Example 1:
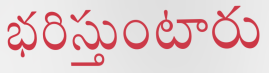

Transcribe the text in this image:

భరిస్తుంటారు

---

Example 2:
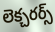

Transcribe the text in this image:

లెక్చరర్స్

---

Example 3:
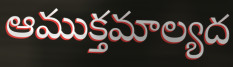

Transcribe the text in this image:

ఆముక్తమాల్యద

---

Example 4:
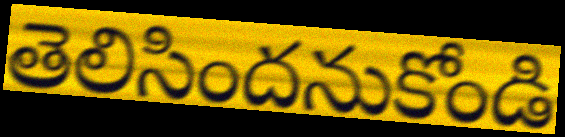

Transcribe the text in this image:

తెలిసిందనుకోండి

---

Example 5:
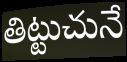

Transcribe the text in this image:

తిట్టుచునే